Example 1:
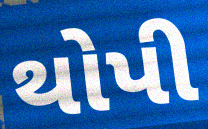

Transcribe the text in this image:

થોપી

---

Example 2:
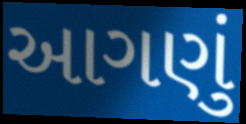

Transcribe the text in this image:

આગણું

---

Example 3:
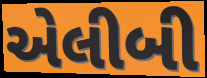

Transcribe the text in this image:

એલીબી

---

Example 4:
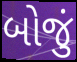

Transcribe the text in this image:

બોજું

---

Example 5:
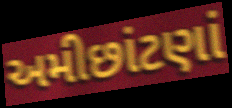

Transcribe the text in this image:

અમીછાંટણાં